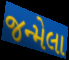
જન્મેલા